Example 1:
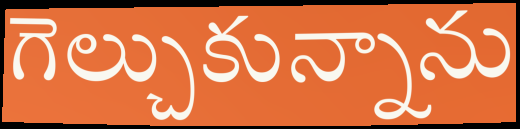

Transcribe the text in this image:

గెల్చుకున్నాను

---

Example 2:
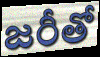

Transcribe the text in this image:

జరీతో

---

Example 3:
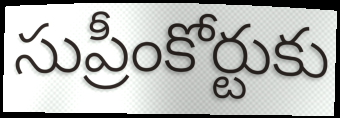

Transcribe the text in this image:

సుప్రీంకోర్టుకు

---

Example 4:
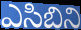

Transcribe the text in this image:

ఎసిబిని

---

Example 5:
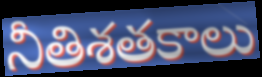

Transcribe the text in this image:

నీతిశతకాలు